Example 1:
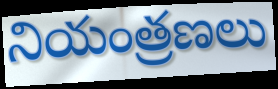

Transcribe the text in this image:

నియంత్రణలు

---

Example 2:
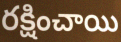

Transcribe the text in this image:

రక్షించాయి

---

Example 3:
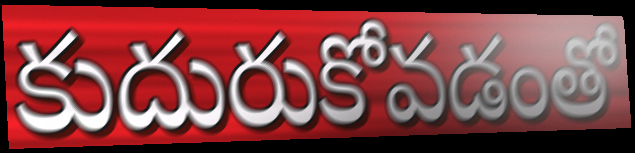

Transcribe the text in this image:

కుదురుకోవడంతో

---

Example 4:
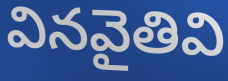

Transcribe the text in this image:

వినవైతివి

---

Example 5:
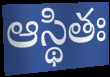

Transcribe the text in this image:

ఆస్థితః